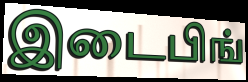
இடைபிங்